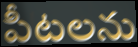
పీటలను